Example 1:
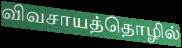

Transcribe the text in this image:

விவசாயத்தொழில்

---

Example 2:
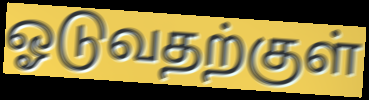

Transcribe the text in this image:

ஓடுவதற்குள்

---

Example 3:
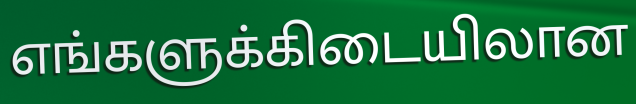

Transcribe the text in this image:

எங்களுக்கிடையிலான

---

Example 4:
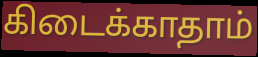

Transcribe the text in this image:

கிடைக்காதாம்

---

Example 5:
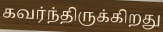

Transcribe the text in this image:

கவர்ந்திருக்கிறது